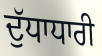
ਦੁੱਧਾਧਾਰੀ